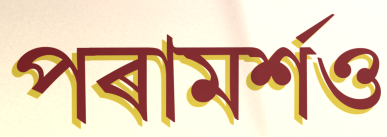
পৰামৰ্শও